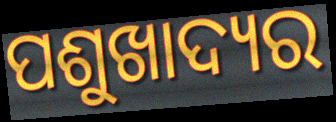
ପଶୁଖାଦ୍ୟର